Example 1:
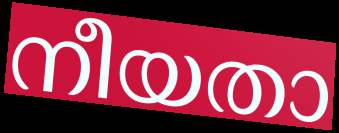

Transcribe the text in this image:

നീയതാ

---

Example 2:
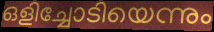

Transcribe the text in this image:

ഒളിച്ചോടിയെന്നും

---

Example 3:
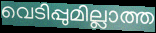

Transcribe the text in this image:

വെടിപ്പുമില്ലാത്ത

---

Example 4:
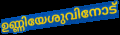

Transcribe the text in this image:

ഉണ്ണിയേശുവിനോട്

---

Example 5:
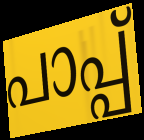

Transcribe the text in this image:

പാപ്പ്